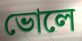
ভোলে